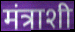
मंत्राशी